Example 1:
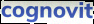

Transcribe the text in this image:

cognovit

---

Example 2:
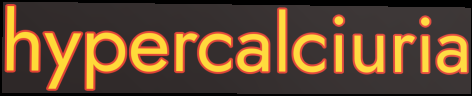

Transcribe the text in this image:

hypercalciuria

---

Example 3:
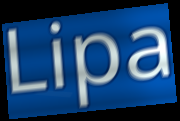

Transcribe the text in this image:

Lipa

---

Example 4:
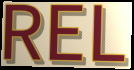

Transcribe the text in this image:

REL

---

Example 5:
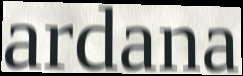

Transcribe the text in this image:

ardana